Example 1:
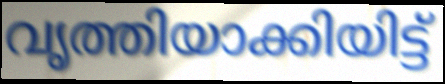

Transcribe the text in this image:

വൃത്തിയാക്കിയിട്ട്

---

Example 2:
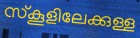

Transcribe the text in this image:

സ്കൂളിലേക്കുള്ള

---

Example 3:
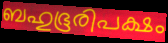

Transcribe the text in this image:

ബഹുഭൂരിപക്ഷം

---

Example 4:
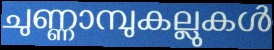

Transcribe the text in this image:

ചുണ്ണാമ്പുകല്ലുകൾ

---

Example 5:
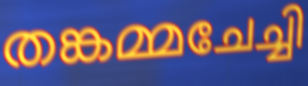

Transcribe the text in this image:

തങ്കമ്മചേച്ചി